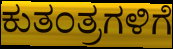
ಕುತಂತ್ರಗಳಿಗೆ